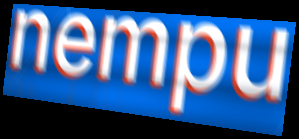
nempu